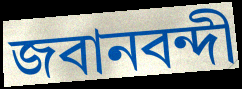
জবানবন্দী